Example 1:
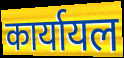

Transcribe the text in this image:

कार्यायल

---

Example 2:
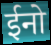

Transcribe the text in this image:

ईनो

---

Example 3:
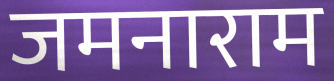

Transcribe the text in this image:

जमनाराम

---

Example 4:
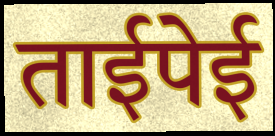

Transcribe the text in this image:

ताईपेई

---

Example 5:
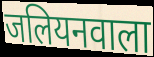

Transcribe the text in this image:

जलियनवाला